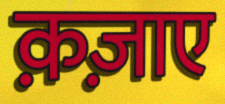
क़ज़ाए